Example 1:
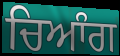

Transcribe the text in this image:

ਚਿਆੰਗ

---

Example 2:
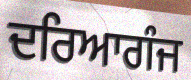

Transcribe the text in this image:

ਦਰਿਆਗੰਜ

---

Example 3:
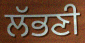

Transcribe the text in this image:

ਲੱਭਣੀ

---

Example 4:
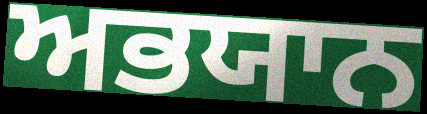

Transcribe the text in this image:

ਅਭਯਾਨ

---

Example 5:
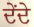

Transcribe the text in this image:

ਦੇਂਦੇ